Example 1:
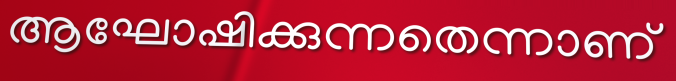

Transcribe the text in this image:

ആഘോഷിക്കുന്നതെന്നാണ്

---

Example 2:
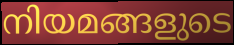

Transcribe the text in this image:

നിയമങ്ങളുടെ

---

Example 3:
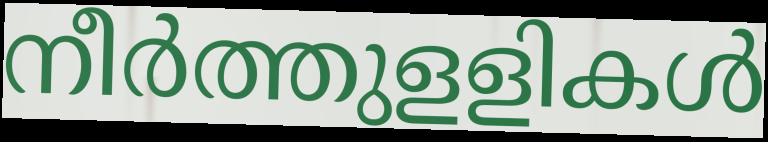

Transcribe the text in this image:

നീർത്തുളളികൾ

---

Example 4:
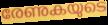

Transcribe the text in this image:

രേണുകയുടെ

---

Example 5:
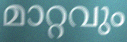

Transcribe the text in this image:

മാറ്റവും